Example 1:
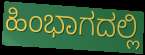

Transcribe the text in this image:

ಹಿಂಭಾಗದಲ್ಲಿ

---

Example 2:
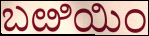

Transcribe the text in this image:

ಬೞಿಯಿಂ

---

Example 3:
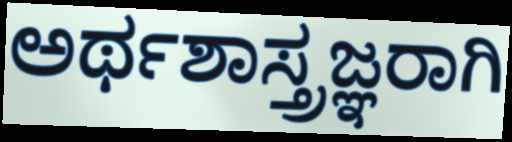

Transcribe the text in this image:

ಅರ್ಥಶಾಸ್ತ್ರಜ್ಞರಾಗಿ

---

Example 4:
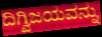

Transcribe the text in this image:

ದಿಗ್ವಿಜಯವನ್ನು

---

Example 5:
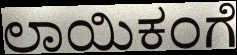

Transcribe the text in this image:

ಲಾಯಿಕಂಗೆ